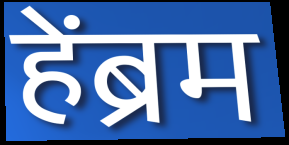
हेंब्रम